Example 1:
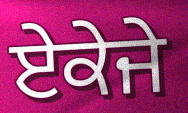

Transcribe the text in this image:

ਏਕੇਜੇ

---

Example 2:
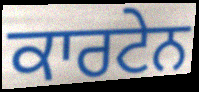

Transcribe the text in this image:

ਕਾਰਟੇਨ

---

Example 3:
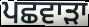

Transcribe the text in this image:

ਪਛਵਾੜਾ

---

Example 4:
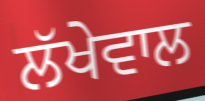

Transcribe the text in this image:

ਲੱਖੇਵਾਲ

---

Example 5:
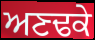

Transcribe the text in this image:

ਅਣਢਕੇ